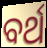
ବର୍ଥ